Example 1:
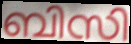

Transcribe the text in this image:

ബിസി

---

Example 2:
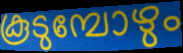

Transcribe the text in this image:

കൂടുമ്പോഴും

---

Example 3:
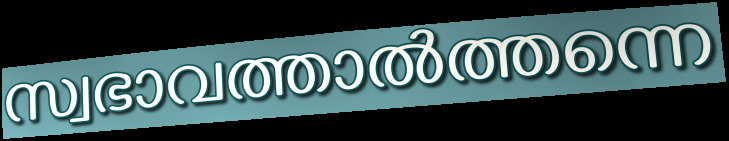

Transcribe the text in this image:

സ്വഭാവത്താൽത്തന്നെ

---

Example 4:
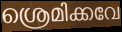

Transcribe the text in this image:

ശ്രെമിക്കവേ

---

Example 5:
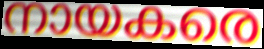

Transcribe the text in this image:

നായകരെ